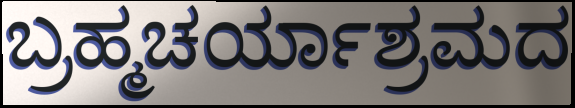
ಬ್ರಹ್ಮಚರ್ಯಾಶ್ರಮದ